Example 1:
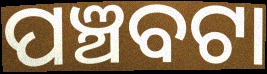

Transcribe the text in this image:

ପଞ୍ଚବଟା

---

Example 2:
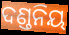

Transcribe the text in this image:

ଦଣ୍ଡନିୟ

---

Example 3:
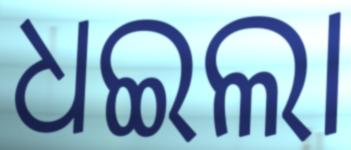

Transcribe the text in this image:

ଧଇଲା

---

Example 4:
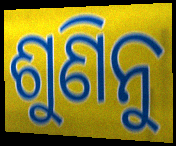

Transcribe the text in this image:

ଶୁଣିନୁ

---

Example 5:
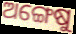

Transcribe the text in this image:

ଅଙ୍ଗେଷୁ